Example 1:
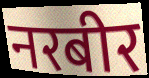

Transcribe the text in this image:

नरबीर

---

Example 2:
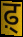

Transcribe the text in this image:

ड़्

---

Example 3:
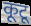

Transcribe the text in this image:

कूटू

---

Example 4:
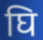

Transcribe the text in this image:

घि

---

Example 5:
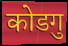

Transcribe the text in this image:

कोडगु